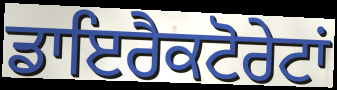
ਡਾਇਰੈਕਟੋਰੇਟਾਂ